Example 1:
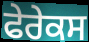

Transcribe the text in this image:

ਫੇਰੇਕਸ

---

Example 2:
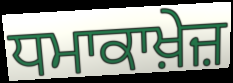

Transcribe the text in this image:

ਧਮਾਕਾਖ਼ੇਜ਼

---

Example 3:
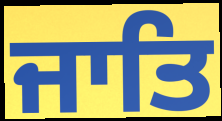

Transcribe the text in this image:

ਜਾਤਿ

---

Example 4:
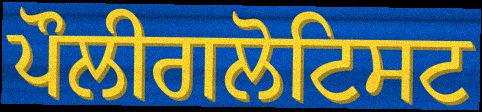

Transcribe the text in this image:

ਪੌਲੀਗਲੋਟਿਸਟ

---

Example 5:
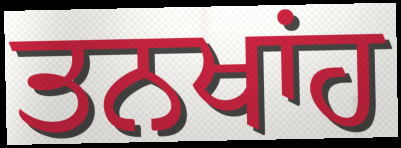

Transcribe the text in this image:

ਤਨਖਾਂਹ